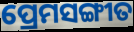
ପ୍ରେମସଙ୍ଗୀତ